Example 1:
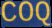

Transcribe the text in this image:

COQ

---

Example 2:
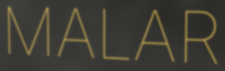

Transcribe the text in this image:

MALAR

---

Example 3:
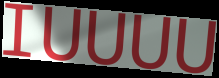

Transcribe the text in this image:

IUUUU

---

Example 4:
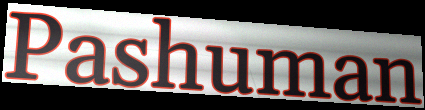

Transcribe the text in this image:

Pashuman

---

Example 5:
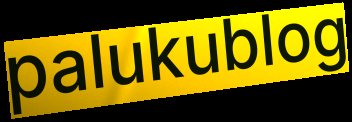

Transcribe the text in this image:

palukublog